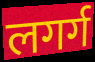
लगर्ग